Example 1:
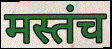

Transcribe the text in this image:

मस्तंच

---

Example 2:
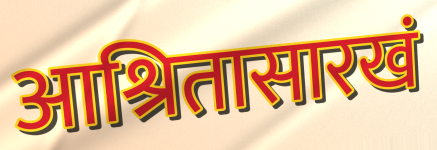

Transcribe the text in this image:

आश्रितासारखं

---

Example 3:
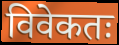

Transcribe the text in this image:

विवेकतः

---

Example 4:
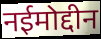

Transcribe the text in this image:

नईमोद्दीन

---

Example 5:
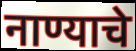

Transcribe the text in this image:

नाण्याचे